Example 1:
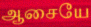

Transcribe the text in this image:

ஆசையே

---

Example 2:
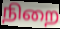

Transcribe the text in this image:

நிறை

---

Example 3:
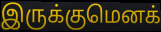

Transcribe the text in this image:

இருக்குமெனக்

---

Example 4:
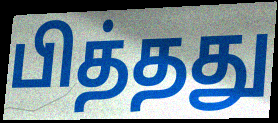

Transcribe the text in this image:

பித்தது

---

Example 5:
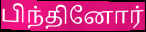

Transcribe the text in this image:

பிந்தினோர்